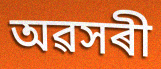
অৱসৰী